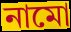
নামো